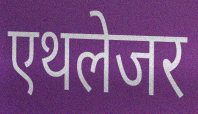
एथलेजर